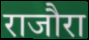
राजौरा